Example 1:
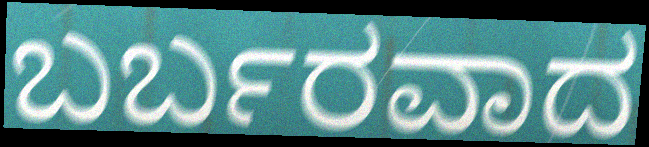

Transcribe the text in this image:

ಬರ್ಬರವಾದ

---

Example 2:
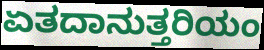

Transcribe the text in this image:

ಏತದಾನುತ್ತರಿಯಂ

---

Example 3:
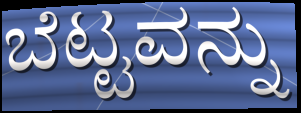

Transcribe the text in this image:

ಬೆಟ್ಟವನ್ನು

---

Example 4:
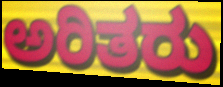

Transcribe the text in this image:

ಅರಿತರು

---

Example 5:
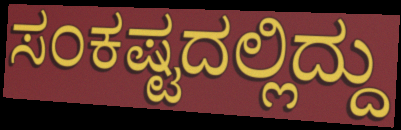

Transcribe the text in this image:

ಸಂಕಷ್ಟದಲ್ಲಿದ್ದು